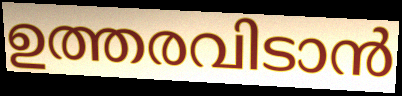
ഉത്തരവിടാൻ